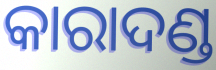
କାରାଦଣ୍ଡ